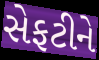
સેફટીને